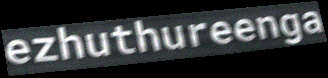
ezhuthureenga